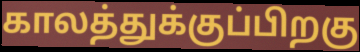
காலத்துக்குப்பிறகு